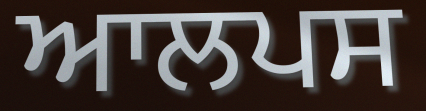
ਆਲਪਸ